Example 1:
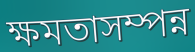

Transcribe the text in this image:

ক্ষমতাসম্পন্ন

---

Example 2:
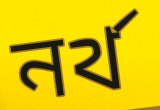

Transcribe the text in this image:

নৰ্থ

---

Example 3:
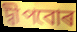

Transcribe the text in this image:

দ্বীপবোৰ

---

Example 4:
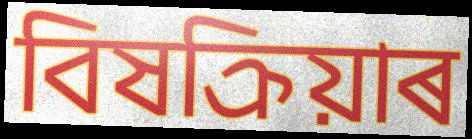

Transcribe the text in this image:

বিষক্ৰিয়াৰ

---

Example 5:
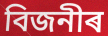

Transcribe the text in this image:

বিজনীৰ